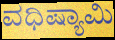
ವಧಿಷ್ಯಾಮಿ